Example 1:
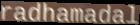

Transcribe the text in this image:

radhamadal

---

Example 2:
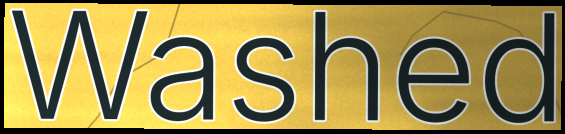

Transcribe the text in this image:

Washed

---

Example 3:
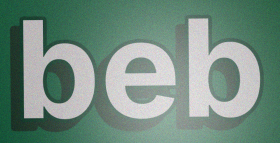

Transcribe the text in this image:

beb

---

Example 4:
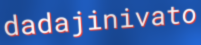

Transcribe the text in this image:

dadajinivato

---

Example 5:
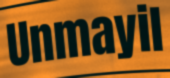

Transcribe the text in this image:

Unmayil